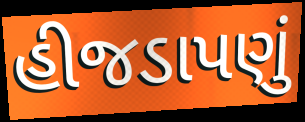
હીજડાપણું